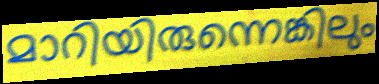
മാറിയിരുന്നെങ്കിലും